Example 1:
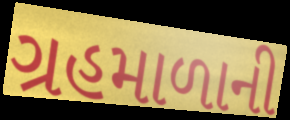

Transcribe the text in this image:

ગ્રહમાળાની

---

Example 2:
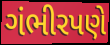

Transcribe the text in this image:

ગંભીરપણે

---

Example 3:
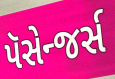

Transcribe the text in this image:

પૅસેન્જર્સ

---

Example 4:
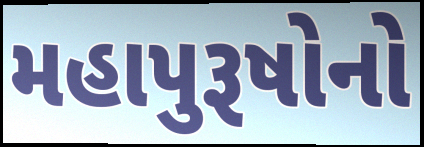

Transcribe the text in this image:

મહાપુરૂષોનો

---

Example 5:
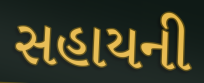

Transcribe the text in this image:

સહાયની